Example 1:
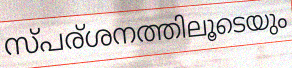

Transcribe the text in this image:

സ്പര്ശനത്തിലൂടെയും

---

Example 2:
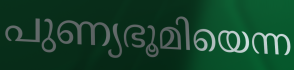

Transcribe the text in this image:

പുണ്യഭൂമിയെന്ന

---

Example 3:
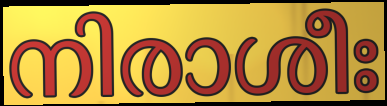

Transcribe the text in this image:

നിരാശീഃ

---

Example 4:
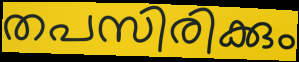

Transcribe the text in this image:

തപസിരിക്കും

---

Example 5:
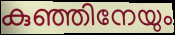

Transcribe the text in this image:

കുഞ്ഞിനേയും